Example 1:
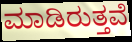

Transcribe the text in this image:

ಮಾಡಿರುತ್ತವೆ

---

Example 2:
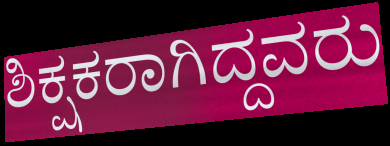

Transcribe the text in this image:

ಶಿಕ್ಷಕರಾಗಿದ್ದವರು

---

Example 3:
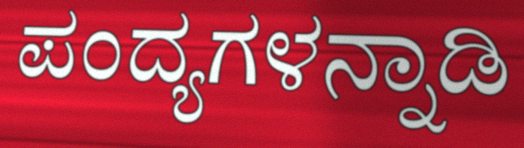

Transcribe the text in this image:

ಪಂದ್ಯಗಳನ್ನಾಡಿ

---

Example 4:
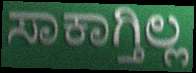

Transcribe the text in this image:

ಸಾಕಾಗ್ತಿಲ್ಲ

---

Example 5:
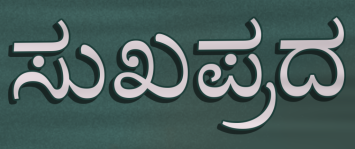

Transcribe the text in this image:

ಸುಖಪ್ರದ